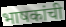
भाषकांची